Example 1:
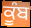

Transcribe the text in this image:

ਕੂੰਬ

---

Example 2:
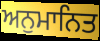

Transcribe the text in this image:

ਅਨੁਮਾਨਿਤ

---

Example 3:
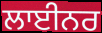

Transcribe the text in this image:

ਲਾਈਨਰ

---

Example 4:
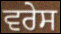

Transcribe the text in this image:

ਵਰੇਸ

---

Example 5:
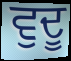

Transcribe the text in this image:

ਵੁਦੂ